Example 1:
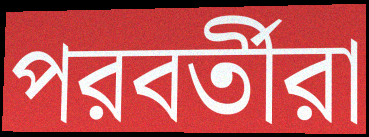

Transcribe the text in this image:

পরবর্তীরা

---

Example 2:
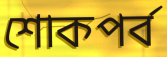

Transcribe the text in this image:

শোকপর্ব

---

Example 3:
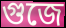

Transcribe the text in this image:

গুজে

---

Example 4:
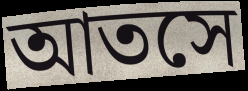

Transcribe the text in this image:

আতসে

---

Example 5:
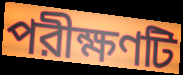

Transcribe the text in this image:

পরীক্ষণটি